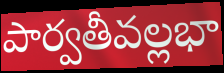
పార్వతీవల్లభా